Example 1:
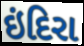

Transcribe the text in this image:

ઇંદિરા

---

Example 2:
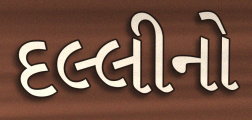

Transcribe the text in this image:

દલ્લીનો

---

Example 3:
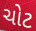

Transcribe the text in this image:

ચોટ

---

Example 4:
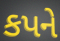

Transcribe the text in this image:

કપને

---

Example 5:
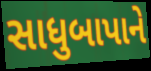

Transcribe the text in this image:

સાધુબાપાને